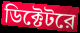
ডিক্টেটরে